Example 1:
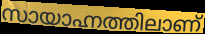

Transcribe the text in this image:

സായാഹ്നത്തിലാണ്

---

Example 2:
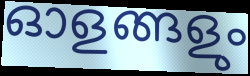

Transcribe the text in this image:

ഓളങ്ങളും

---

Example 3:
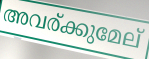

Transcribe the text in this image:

അവര്ക്കുമേല്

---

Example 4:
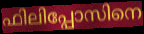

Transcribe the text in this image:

ഫിലിപ്പോസിനെ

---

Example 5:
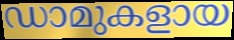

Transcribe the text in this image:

ഡാമുകളായ